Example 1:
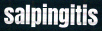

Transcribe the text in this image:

salpingitis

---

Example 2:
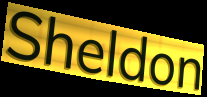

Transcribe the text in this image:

Sheldon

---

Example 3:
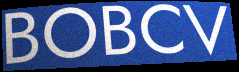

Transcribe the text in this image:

BOBCV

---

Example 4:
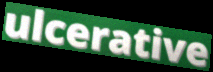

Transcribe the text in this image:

ulcerative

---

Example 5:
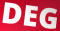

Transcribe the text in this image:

DEG